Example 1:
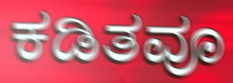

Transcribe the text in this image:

ಕಡಿತವೂ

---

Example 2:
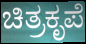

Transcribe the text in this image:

ಚಿತ್ರಕೃಪೆ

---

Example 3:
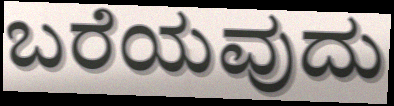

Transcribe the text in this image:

ಬರೆಯವುದು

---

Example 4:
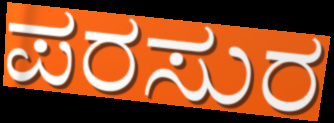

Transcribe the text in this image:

ಪರಸುರ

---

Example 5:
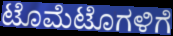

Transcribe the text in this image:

ಟೊಮೆಟೊಗಳಿಗೆ